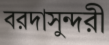
বরদাসুন্দরী